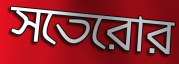
সতেরোর